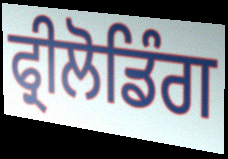
ਫ੍ਰੀਲੋਡਿੰਗ